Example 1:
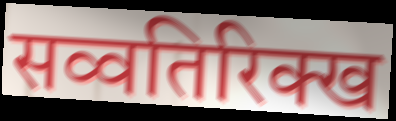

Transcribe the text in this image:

सव्वतिरिक्ख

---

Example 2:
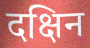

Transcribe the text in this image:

दक्षिन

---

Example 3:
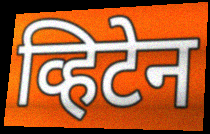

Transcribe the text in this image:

व्हिटेन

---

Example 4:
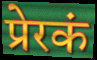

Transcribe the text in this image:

प्रेरकं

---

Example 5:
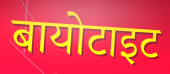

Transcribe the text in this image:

बायोटाइट